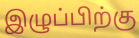
இழுப்பிற்கு